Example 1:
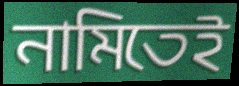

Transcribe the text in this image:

নামিতেই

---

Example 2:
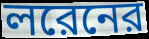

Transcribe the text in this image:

লরেনের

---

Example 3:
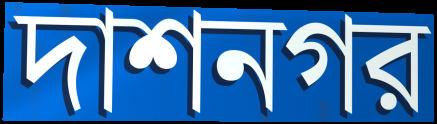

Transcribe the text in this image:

দাশনগর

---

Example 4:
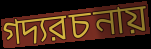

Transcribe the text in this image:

গদ্যরচনায়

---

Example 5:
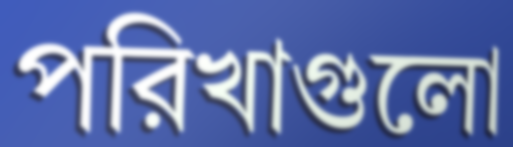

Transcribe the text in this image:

পরিখাগুলো